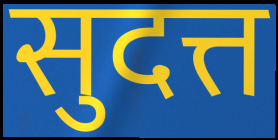
सुदत्त